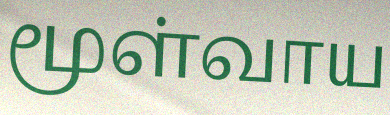
மூள்வாய